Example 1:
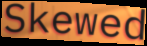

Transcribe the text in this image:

Skewed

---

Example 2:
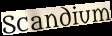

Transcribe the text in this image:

Scandium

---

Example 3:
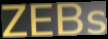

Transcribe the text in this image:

ZEBs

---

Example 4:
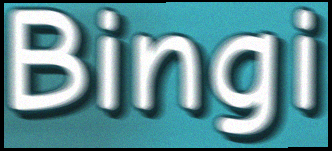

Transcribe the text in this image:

Bingi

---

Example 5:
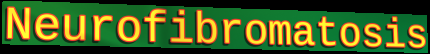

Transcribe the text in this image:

Neurofibromatosis